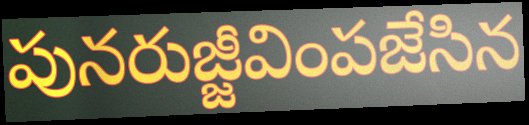
పునరుజ్జీవింపజేసిన